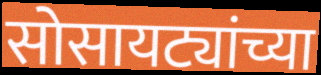
सोसायट्यांच्या